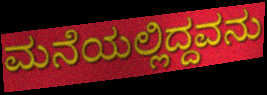
ಮನೆಯಲ್ಲಿದ್ದವನು